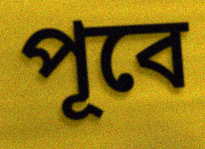
পূবে